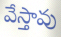
వేస్తావు